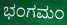
ಭಂಗಮಂ